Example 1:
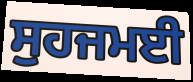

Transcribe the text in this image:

ਸੁਹਜਮਈ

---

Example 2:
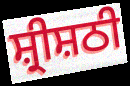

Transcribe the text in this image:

ਸ਼੍ਰੀਸ਼ਠੀ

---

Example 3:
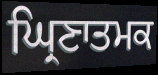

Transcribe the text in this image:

ਘ੍ਰਿਣਾਤਮਕ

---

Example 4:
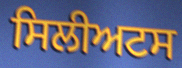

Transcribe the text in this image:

ਸਿਲੀਅਟਸ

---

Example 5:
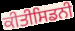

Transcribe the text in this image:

ਕੀਤੀਸਿਡਨੀ